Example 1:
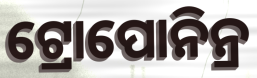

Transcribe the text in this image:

ଟ୍ରୋପୋନିନ୍ର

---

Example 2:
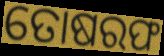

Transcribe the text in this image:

ତୋଷରଫ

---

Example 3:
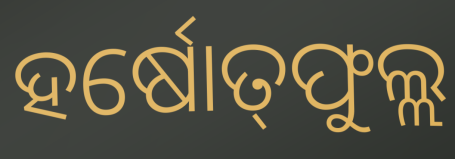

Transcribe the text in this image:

ହର୍ଷୋତ୍‌ଫୁଲ୍ଲ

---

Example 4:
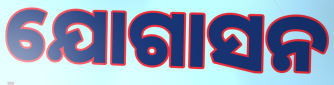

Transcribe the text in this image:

ଯୋଗାସନ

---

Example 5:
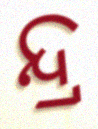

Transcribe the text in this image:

ନ୍ଦ୍ର